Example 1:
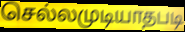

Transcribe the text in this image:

செல்லமுடியாதபடி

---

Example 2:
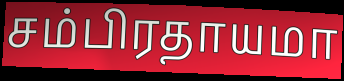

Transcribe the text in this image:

சம்பிரதாயமா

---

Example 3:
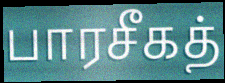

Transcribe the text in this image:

பாரசீகத்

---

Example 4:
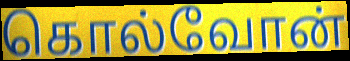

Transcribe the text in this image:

கொல்வோன்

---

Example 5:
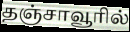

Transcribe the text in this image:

தஞ்சாவூரில்